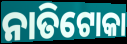
ନାତିଟୋକା